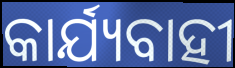
କାର୍ଯ୍ୟବାହୀ